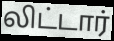
லிட்டார்